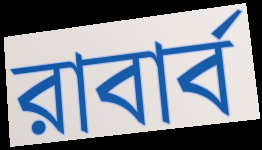
রাবার্ব